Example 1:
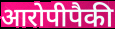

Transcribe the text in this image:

आरोपीपैकी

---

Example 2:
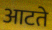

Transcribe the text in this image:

आटते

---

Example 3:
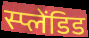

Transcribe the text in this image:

स्प्लेंडिड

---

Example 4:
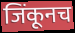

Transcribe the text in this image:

जिंकूनच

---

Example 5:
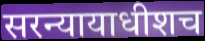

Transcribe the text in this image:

सरन्यायाधीशच